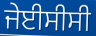
ਜੇਈਸੀਸੀ